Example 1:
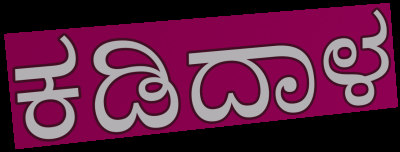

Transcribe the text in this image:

ಕಡಿದಾಳ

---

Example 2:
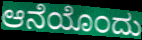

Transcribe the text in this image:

ಆನೆಯೊಂದು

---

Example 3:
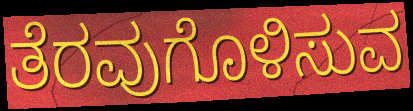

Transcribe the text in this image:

ತೆರವುಗೊಳಿಸುವ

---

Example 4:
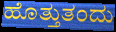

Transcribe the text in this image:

ಹೊತ್ತುತಂದು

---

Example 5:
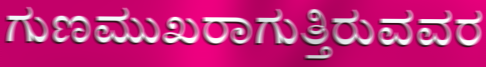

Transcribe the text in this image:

ಗುಣಮುಖರಾಗುತ್ತಿರುವವರ